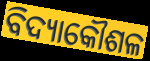
ବିଦ୍ୟାକୌଶଳ